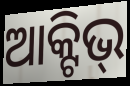
ଆକ୍ଟିଭ୍